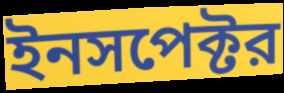
ইনসপেক্টর